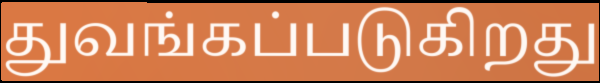
துவங்கப்படுகிறது